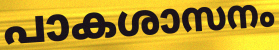
പാകശാസനം